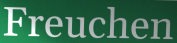
Freuchen